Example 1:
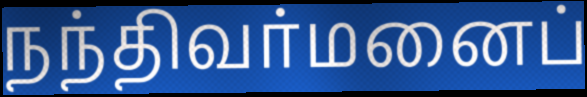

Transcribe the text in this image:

நந்திவர்மனைப்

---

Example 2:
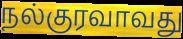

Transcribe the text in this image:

நல்குரவாவது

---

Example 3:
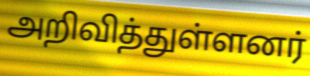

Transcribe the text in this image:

அறிவித்துள்ளனர்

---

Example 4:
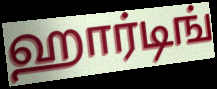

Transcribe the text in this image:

ஹார்டிங்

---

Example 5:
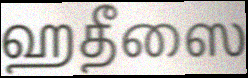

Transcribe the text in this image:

ஹதீஸை